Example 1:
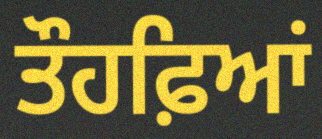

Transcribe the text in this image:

ਤੌਹਫ਼ਿਆਂ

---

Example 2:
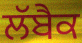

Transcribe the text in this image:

ਲੱਬੈਕ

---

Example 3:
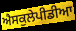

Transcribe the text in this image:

ਐਸਕੁਲੇਪੀਡੀਆ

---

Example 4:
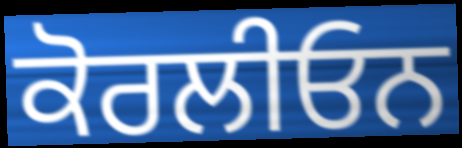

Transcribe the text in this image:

ਕੋਰਲੀਓਨ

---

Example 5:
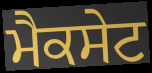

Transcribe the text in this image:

ਮੈਕਸੇਟ